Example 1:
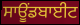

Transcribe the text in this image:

ਸਾਊਂਡਬਾਈਟ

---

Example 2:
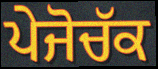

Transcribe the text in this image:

ਪੇਜੋਚੱਕ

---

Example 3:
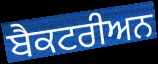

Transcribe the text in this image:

ਬੈਕਟਰੀਅਨ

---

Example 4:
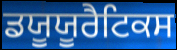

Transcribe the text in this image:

ਡਯੂਯੂਰੈਟਿਕਸ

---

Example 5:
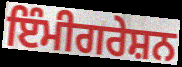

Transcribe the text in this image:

ਇੰਮੀਗਰੇਸ਼ਨ